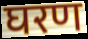
घरण